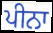
ਪੀਨਾ